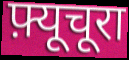
फ़्यूचूरा